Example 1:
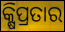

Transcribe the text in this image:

କ୍ଷିପ୍ରତାର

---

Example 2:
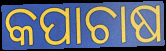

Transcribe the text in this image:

କପାଚାଷ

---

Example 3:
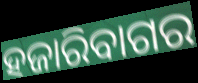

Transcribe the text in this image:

ହଜାରିବାଗର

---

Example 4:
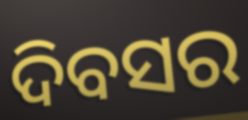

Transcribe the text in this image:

ଦିବସର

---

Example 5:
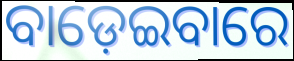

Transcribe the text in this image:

ବାଡ଼େଇବାରେ